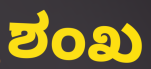
ಶಂಖ